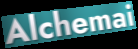
Alchemai